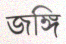
জঙ্গি